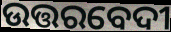
ଉତ୍ତରବେଦୀ